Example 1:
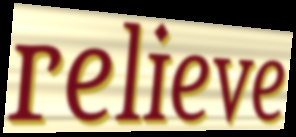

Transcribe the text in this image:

relieve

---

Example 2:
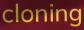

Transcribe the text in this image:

cloning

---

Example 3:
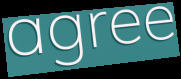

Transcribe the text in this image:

agree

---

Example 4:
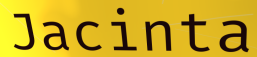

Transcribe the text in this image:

Jacinta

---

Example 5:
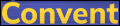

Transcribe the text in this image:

Convent